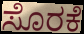
ಸೊರಕೆ